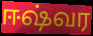
ஈஷ்வர